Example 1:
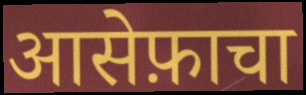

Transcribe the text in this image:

आसेफ़ाचा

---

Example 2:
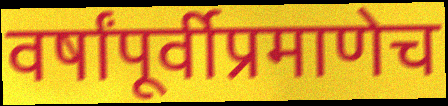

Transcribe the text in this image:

वर्षांपूर्वीप्रमाणेच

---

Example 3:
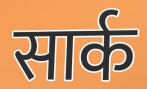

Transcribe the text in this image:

सार्क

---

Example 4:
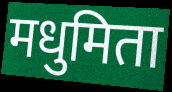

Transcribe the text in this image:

मधुमिता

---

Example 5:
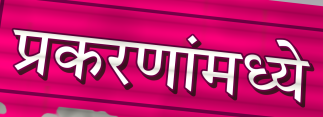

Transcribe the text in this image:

प्रकरणांमध्ये